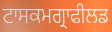
ਟਾਸਕਮਗ੍ਰਾਫੀਲਡ